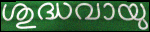
ശുദ്ധവായു